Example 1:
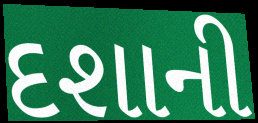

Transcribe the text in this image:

દશાની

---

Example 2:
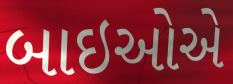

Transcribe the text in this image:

બાઇઓએ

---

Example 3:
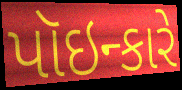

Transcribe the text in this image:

પૉઇન્કારે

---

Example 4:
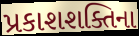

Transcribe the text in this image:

પ્રકાશશક્તિના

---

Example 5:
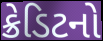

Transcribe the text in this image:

ક્રેડિટનો